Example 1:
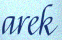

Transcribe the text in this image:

arek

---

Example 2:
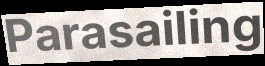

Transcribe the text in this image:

Parasailing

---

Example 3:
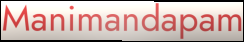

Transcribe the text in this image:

Manimandapam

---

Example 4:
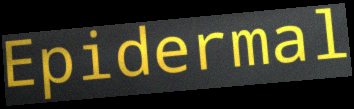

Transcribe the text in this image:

Epidermal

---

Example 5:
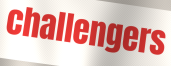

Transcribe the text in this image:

challengers